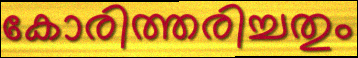
കോരിത്തരിച്ചതും